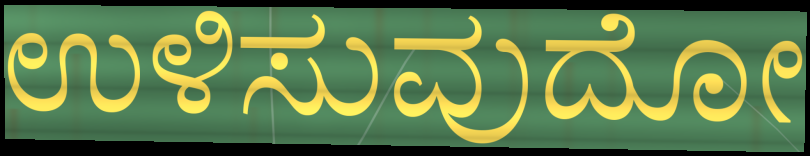
ಉಳಿಸುವುದೋ